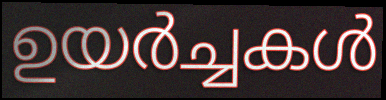
ഉയർച്ചകൾ